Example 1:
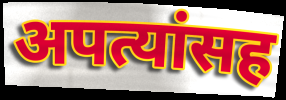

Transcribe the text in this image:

अपत्यांसह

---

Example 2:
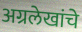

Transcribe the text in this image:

अग्रलेखांचे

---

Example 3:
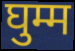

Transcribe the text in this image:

घुम्म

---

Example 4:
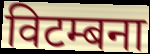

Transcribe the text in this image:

विटम्बना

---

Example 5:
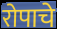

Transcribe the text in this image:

रोपाचे